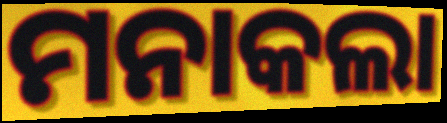
ମନାକଲା